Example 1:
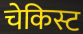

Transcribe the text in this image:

चेकिस्ट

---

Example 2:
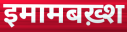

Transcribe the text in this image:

इमामबख़्श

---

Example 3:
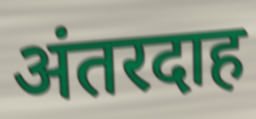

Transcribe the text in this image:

अंतरदाह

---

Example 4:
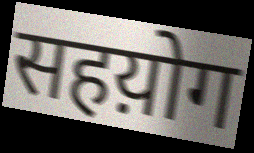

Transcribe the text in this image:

सहय़ोग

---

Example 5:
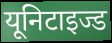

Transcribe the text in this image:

यूनिटाइज्ड